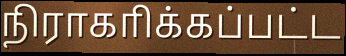
நிராகரிக்கப்பட்ட